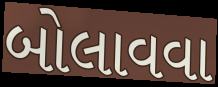
બોલાવવા